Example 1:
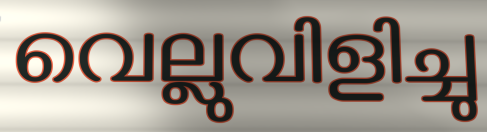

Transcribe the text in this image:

വെല്ലുവിളിച്ചു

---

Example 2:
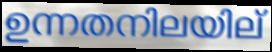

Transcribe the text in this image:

ഉന്നതനിലയില്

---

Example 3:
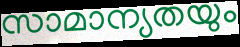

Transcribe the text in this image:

സാമാന്യതയും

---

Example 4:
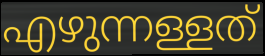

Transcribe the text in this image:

എഴുന്നള്ളത്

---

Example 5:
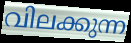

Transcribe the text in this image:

വിലക്കുന്ന